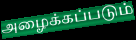
அழைக்கப்படும்